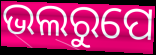
ଭଲରୁପେ